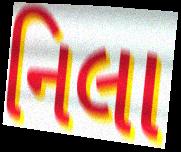
નિલા